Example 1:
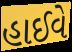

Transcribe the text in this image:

હાઈવે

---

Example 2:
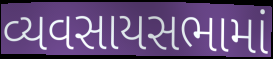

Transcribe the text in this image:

વ્યવસાયસભામાં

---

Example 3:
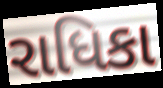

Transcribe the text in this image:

રાધિકા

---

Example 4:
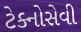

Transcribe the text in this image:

ટેક્નોસેવી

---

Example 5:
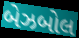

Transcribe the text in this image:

બેઝબોલ